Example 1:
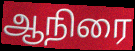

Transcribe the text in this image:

ஆநிரை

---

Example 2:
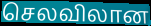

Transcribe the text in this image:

செலவிலான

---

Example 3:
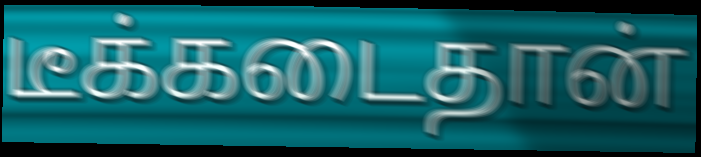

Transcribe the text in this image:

டீக்கடைதான்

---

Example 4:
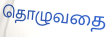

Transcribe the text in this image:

தொழுவதை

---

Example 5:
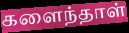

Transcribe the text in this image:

களைந்தாள்